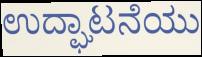
ಉದ್ಘಾಟನೆಯು